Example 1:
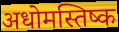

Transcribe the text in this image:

अधोमस्तिष्क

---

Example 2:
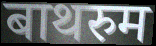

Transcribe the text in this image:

बाथरुम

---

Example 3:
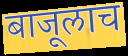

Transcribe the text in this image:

बाजूलाच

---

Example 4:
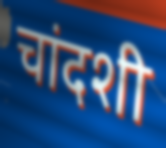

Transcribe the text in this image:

चांदशी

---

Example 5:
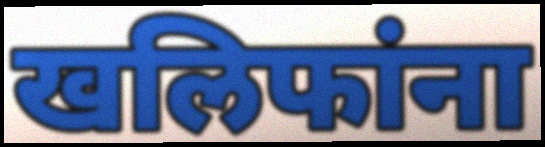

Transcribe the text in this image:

खलिफांना